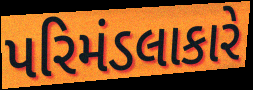
પરિમંડલાકારે